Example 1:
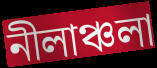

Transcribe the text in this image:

নীলাঞ্চলা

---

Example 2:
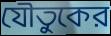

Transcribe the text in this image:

যৌতুকের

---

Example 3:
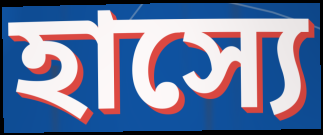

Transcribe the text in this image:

হাস্যে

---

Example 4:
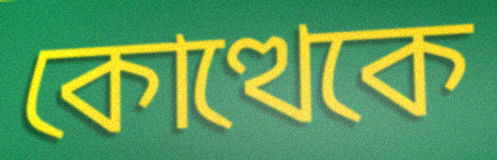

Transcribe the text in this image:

কোত্থেকে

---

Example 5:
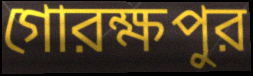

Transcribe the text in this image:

গোরক্ষপুর